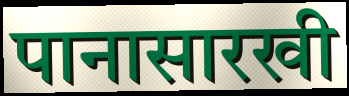
पानासारखी